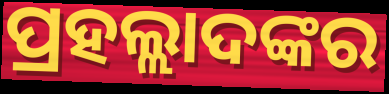
ପ୍ରହଲ୍ଲାଦଙ୍କର